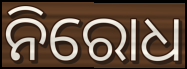
ନିରୋଧ